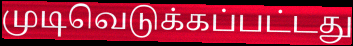
முடிவெடுக்கப்பட்டது